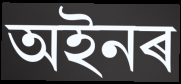
অইনৰ